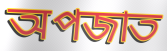
অপজাত